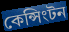
কেন্সিংটন